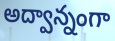
అద్వాన్నంగా